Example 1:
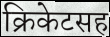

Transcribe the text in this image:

क्रिकेटसह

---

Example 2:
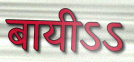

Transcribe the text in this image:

बायीऽऽ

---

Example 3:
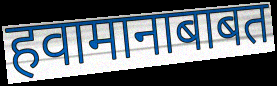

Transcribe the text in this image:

हवामानाबाबत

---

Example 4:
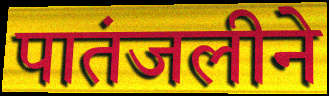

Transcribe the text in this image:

पातंजलीने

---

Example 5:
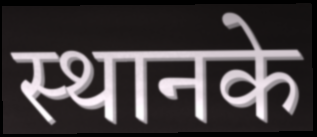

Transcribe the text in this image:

स्थानके